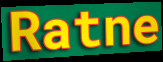
Ratne